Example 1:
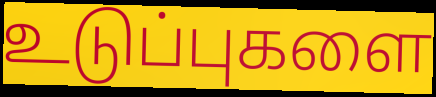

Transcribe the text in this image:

உடுப்புகளை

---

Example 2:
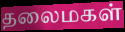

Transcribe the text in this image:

தலைமகள்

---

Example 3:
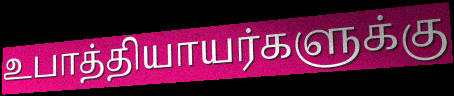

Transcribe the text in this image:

உபாத்தியாயர்களுக்கு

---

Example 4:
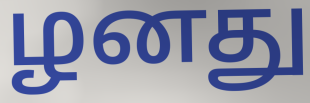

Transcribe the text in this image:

ழனது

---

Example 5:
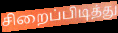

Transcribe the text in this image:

சிறைப்பிடித்து